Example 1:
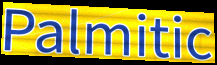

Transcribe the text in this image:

Palmitic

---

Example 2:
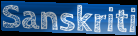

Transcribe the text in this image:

Sanskriti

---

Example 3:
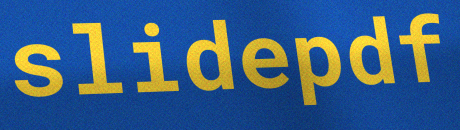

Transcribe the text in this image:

slidepdf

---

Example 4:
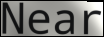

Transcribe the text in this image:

Near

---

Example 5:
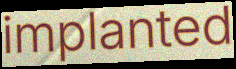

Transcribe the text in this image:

implanted